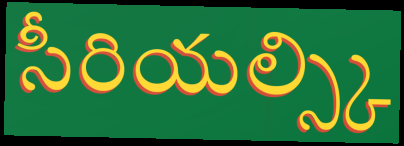
సీరియల్స్కి